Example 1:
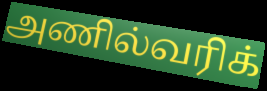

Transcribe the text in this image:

அணில்வரிக்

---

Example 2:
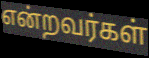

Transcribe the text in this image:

என்றவர்கள்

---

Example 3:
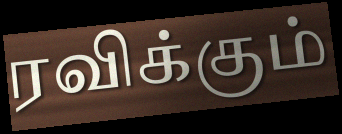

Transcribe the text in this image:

ரவிக்கும்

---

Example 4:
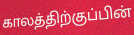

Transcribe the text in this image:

காலத்திற்குப்பின்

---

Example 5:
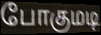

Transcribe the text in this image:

போகுமடி